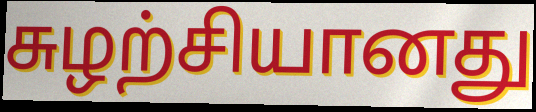
சுழற்சியானது